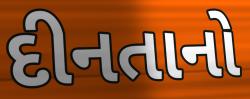
દીનતાનો